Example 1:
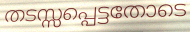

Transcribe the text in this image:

തടസ്സപ്പെട്ടതോടെ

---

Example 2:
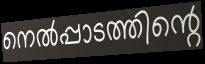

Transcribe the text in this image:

നെൽപ്പാടത്തിന്റെ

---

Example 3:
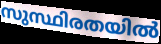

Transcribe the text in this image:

സുസ്ഥിരതയിൽ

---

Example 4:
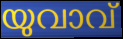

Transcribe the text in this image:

യുവാവ്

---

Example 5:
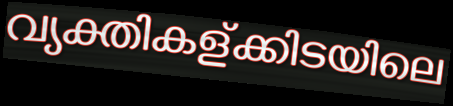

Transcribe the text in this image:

വ്യക്തികള്ക്കിടയിലെ